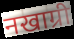
नखाग्री